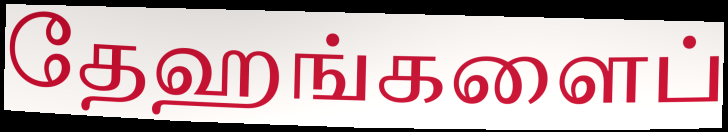
தேஹங்களைப்